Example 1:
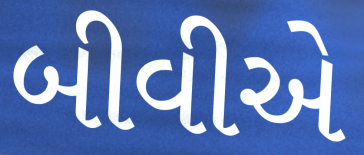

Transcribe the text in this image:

બીવીએ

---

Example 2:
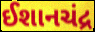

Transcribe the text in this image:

ઈશાનચંદ્ર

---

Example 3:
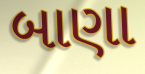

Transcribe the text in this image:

બાણા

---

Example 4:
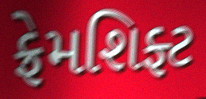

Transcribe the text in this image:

ફ્રેમશિફ્ટ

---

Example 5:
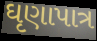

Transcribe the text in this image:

ઘૃણાપાત્ર